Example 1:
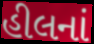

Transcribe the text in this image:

હીલનાં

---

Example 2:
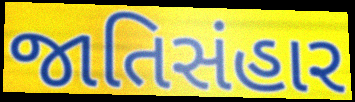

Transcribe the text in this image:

જાતિસંહાર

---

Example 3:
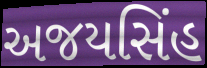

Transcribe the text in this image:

અજયસિંહ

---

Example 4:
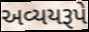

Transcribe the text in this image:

અવ્યયરૂપે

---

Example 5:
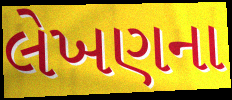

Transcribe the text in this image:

લેખણના